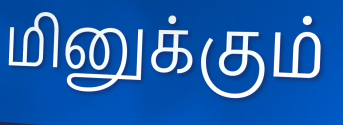
மினுக்கும்